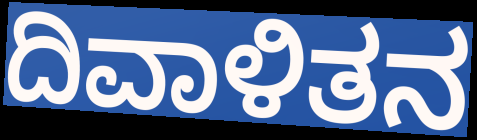
ದಿವಾಳಿತನ